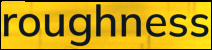
roughness